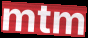
mtm